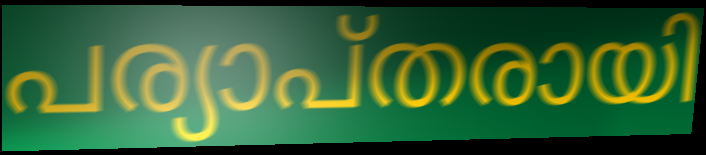
പര്യാപ്തരായി